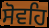
ਸੋਵਹਿ